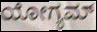
ಯೋಗ್ಯಮ್